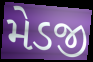
મેડજી